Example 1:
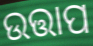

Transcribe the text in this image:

ଉତ୍ତାପ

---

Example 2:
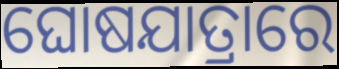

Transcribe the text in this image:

ଘୋଷଯାତ୍ରାରେ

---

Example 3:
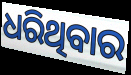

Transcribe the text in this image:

ଧରିଥିବାର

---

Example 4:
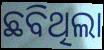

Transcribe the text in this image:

ଛବିଥିଲା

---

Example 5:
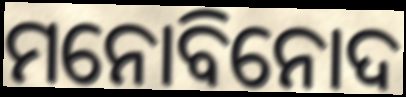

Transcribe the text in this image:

ମନୋବିନୋଦ